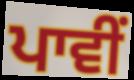
ਪਾਵੀਂ